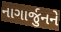
નાગાર્જુનને